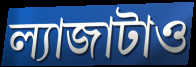
ল্যাজাটাও